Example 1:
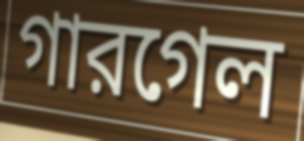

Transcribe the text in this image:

গারগেল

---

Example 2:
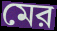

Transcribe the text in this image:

মের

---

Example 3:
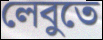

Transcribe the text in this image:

লেবুতে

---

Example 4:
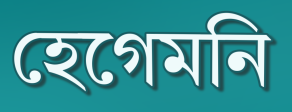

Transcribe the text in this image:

হেগেমনি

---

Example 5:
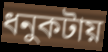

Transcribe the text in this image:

ধনুকটায়